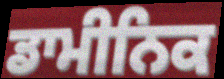
ਡਾਮੀਨਿਕ